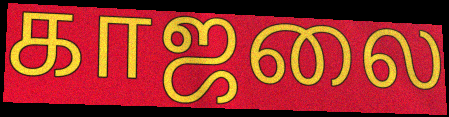
காஜலை